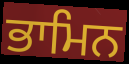
ਭਾਮਿਨ